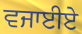
ਵਜਾਈਏ